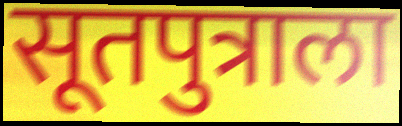
सूतपुत्राला